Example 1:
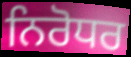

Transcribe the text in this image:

ਨਿਰੋਧਰ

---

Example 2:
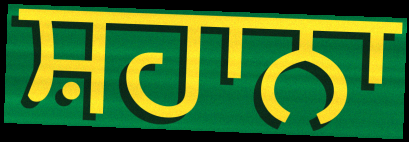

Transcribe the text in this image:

ਸ਼ਹਾਨਾ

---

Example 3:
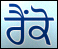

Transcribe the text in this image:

ਰੈਂਕੋ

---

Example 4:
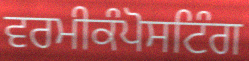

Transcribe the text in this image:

ਵਰਮੀਕੰਪੋਸਟਿੰਗ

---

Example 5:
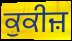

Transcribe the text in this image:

ਕੁਕੀਜ਼